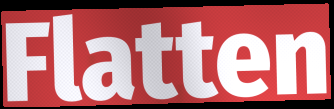
Flatten